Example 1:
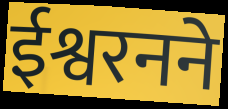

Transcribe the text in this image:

ईश्वरनने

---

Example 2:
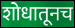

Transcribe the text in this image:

शोधातूनच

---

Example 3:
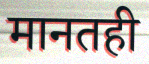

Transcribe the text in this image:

मानतही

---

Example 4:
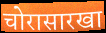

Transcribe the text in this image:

चोरासारखा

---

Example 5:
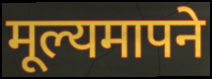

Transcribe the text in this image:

मूल्यमापने